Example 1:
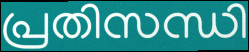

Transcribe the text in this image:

പ്രതിസന്ധി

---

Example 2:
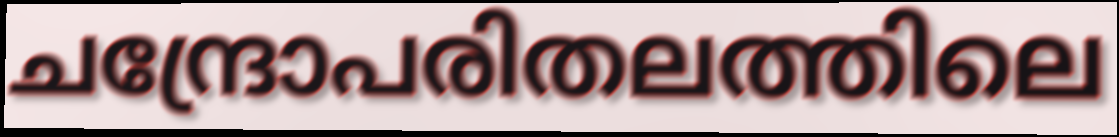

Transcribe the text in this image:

ചന്ദ്രോപരിതലത്തിലെ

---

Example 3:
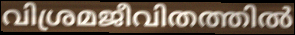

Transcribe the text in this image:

വിശ്രമജീവിതത്തിൽ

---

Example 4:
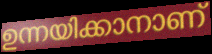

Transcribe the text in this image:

ഉന്നയിക്കാനാണ്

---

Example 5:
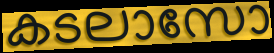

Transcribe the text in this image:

കടലാസോ